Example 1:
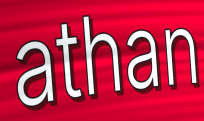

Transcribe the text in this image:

athan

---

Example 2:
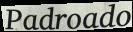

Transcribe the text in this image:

Padroado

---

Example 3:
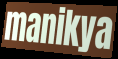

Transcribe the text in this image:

manikya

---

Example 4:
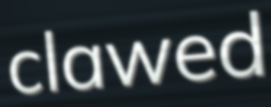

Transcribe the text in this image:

clawed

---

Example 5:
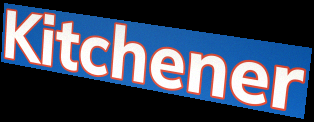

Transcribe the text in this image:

Kitchener